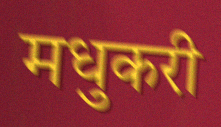
मधुकरी